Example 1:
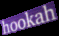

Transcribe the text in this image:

hookah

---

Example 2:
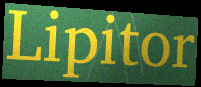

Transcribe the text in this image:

Lipitor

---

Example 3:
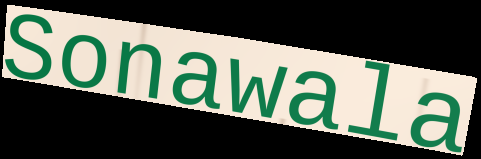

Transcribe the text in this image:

Sonawala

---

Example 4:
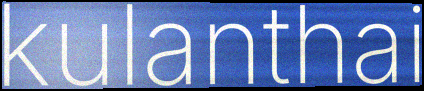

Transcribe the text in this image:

kulanthai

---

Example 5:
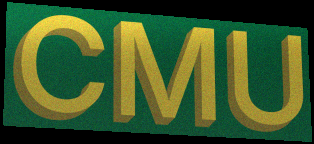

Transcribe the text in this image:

CMU